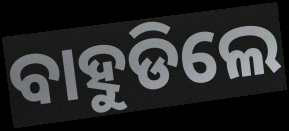
ବାହୁଡିଲେ